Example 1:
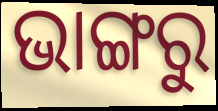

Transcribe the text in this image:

ଭାଙ୍ଗରୁ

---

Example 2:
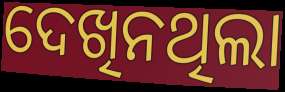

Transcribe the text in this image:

ଦେଖିନଥିଲା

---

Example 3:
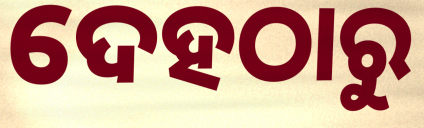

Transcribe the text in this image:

ଦେହଠାରୁ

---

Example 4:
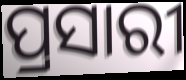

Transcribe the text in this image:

ପ୍ରସାରୀ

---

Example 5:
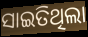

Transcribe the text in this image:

ସାଇତିଥିଲା